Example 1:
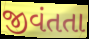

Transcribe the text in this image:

જીવંતતા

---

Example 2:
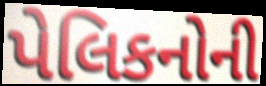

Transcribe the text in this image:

પેલિકનોની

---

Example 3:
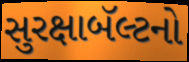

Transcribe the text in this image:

સુરક્ષાબૅલ્ટનો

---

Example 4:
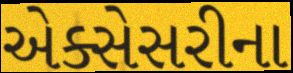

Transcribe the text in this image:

એક્સેસરીના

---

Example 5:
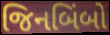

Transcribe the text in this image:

જિનબિંબો